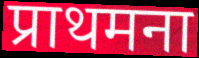
प्राथमना